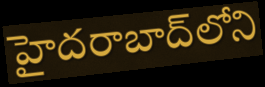
హైదరాబాద్‌లోని